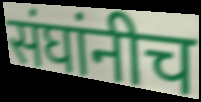
संघांनीच